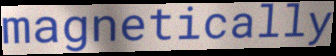
magnetically